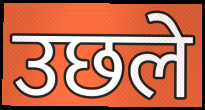
उछले